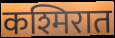
कश्मिरात